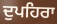
ਦੁਪਹਿਰਾ